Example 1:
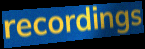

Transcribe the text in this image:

recordings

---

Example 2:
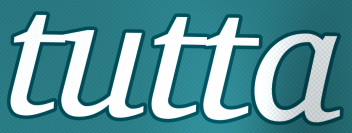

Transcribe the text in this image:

tutta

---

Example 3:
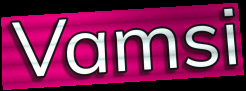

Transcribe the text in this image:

Vamsi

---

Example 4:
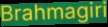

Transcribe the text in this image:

Brahmagiri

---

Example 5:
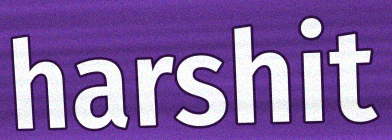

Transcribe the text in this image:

harshit